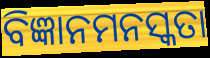
ବିଜ୍ଞାନମନସ୍କତା